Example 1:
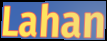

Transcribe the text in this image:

Lahan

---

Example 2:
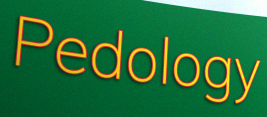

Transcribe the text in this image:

Pedology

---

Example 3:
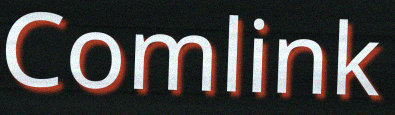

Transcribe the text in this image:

Comlink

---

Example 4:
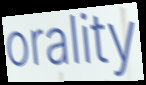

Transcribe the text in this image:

orality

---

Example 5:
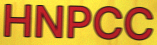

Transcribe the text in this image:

HNPCC